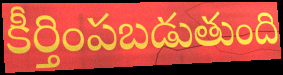
కీర్తింపబడుతుంది